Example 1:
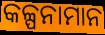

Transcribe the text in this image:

କଳ୍ପନାମାନ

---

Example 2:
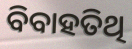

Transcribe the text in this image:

ବିବାହତିଥି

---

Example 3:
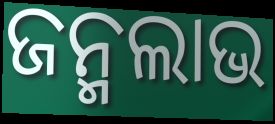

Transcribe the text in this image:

ଜନ୍ମଲାଭ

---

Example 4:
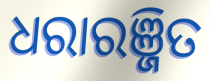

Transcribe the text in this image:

ଧରାରଞ୍ଜିତ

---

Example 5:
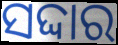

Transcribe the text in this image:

ସଦ୍ଦାର